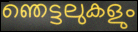
ഞെട്ടലുകളും